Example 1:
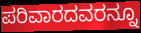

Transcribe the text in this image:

ಪರಿವಾರದವರನ್ನೂ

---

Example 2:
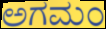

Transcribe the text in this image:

ಅಗಮಂ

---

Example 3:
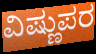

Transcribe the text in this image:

ವಿಷ್ಣುಪರ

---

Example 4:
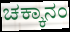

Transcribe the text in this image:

ಚಕ್ಕಾನಂ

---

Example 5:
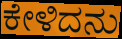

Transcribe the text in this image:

ಕೇಳಿದನು